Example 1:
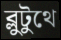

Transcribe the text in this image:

ব্লুটুথে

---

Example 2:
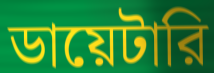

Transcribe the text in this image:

ডায়েটারি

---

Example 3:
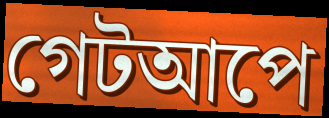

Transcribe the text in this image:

গেটআপে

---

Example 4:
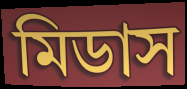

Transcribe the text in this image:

মিডাস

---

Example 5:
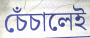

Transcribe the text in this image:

চেঁচালেই